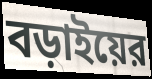
বড়াইয়ের